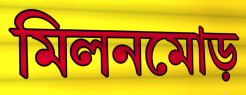
মিলনমোড়